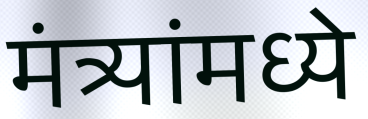
मंत्र्यांमध्ये